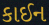
કાઈન